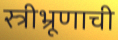
स्त्रीभ्रूणाची